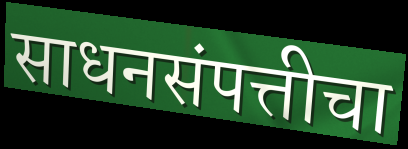
साधनसंपत्तीचा